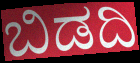
ಬಿಡದಿ